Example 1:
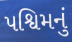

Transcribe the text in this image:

પશ્વિમનું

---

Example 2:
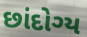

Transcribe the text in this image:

છાંદોગ્ય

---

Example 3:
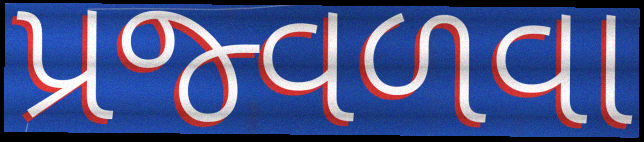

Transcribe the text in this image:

પ્રજ્વળવા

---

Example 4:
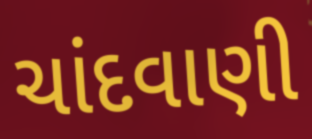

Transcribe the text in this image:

ચાંદવાણી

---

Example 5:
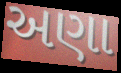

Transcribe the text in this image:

અણા